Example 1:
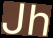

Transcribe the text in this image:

Jh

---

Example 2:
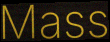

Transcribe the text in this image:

Mass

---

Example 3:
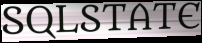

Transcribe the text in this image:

SQLSTATE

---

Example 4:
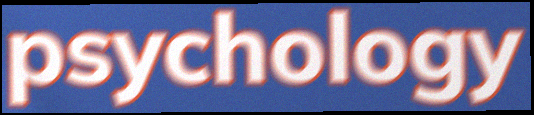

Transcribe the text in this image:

psychology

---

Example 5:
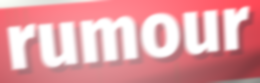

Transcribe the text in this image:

rumour